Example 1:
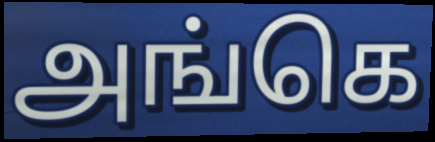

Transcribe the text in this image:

அங்கெ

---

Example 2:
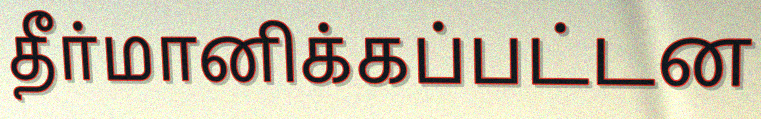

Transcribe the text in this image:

தீர்மானிக்கப்பட்டன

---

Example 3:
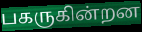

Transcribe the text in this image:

பகருகின்றன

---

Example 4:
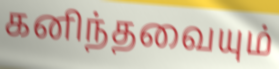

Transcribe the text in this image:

கனிந்தவையும்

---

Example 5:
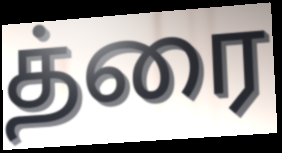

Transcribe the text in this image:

த்ரை